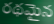
రథమైన